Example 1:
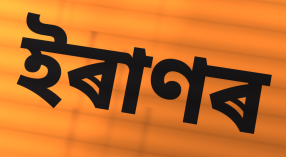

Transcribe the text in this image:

ইৰাণৰ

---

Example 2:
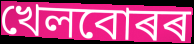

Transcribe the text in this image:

খেলবোৰৰ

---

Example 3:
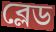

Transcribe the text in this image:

ব্লেড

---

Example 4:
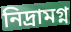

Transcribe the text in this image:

নিদ্ৰামগ্ন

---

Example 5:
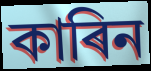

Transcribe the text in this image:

কাৰিন